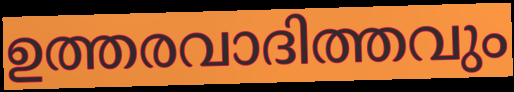
ഉത്തരവാദിത്തവും